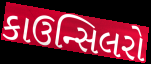
કાઉન્સિલરો